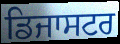
ਡਿਜਾਸਟਰ